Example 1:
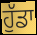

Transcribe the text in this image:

ਹੁੱਡਾ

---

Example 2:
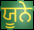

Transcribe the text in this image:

ਯੂਨੇ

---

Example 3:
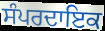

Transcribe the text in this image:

ਸੰਪਰਦਾਇਕ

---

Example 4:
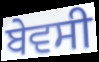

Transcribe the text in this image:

ਬੇਵਸੀ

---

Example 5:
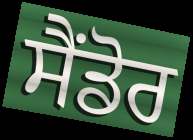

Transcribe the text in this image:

ਸੈਂਡੋਰ